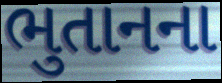
ભુતાનના